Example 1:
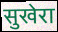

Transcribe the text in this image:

सुखेरा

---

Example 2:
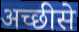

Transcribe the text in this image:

अच्छीसे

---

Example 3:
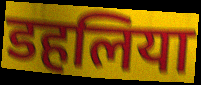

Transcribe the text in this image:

डहलिया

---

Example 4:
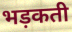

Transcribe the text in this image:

भड़कती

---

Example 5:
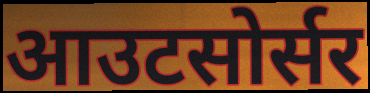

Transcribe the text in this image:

आउटसोर्सर